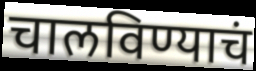
चालविण्याचं